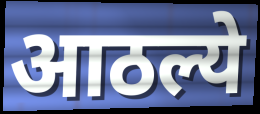
आठल्ये